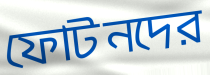
ফোটনদের